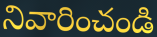
నివారించండి